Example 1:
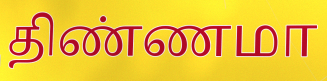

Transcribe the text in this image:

திண்ணமா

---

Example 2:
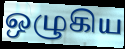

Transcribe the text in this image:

ஒழுகிய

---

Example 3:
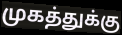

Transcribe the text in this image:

முகத்துக்கு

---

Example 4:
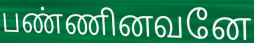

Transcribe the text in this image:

பண்ணினவனே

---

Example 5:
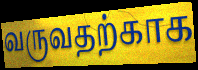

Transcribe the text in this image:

வருவதற்காக